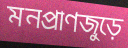
মনপ্রাণজুড়ে